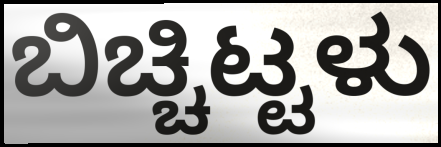
ಬಿಚ್ಚಿಟ್ಟಳು